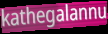
kathegalannu